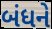
બંધને